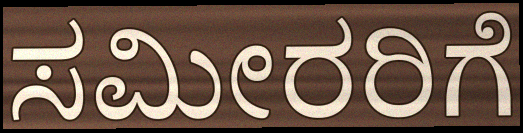
ಸಮೀರರಿಗೆ